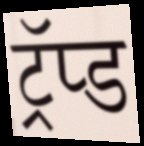
ट्रॅप्ड